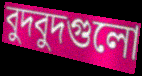
বুদবুদগুলো